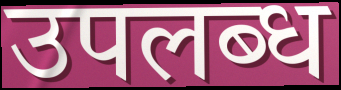
उपलब्‍ध